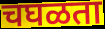
चघळता